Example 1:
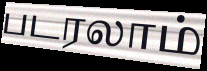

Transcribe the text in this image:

படரலாம்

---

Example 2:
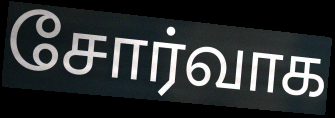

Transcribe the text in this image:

சோர்வாக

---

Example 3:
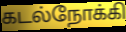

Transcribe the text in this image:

கடல்நோக்கி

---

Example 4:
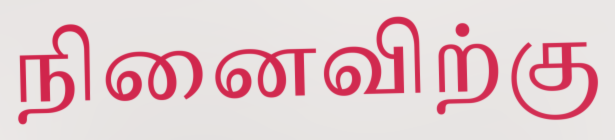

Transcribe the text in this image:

நினைவிற்கு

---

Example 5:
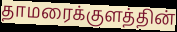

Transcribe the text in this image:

தாமரைக்குளத்தின்